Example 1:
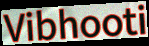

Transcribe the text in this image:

Vibhooti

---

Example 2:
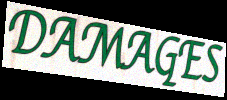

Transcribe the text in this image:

DAMAGES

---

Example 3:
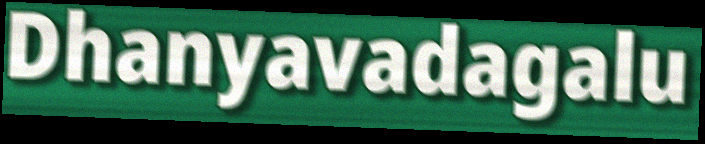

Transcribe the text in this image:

Dhanyavadagalu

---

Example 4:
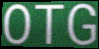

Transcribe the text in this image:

OTG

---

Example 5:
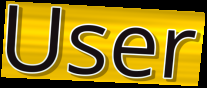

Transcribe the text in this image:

User